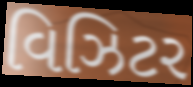
વિઝિટર